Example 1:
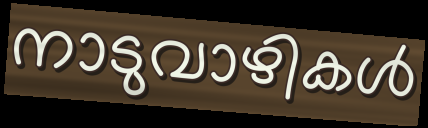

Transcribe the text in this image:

നാടുവാഴികൾ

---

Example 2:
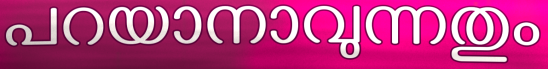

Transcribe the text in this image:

പറയാനാവുന്നതും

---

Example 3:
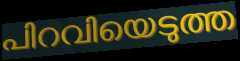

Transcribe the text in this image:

പിറവിയെടുത്ത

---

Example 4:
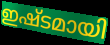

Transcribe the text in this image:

ഇഷ്ടമായി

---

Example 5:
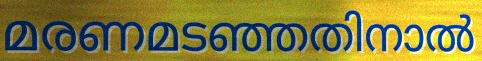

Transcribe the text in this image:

മരണമടഞ്ഞതിനാൽ